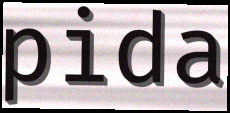
pida